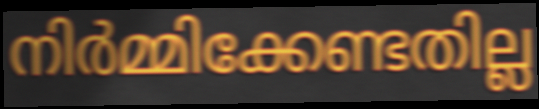
നിർമ്മിക്കേണ്ടതില്ല